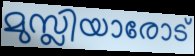
മുസ്ലിയാരോട്